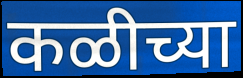
कळीच्या